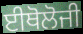
ਈਥੋਲੋਜੀ